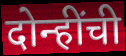
दोन्हींची